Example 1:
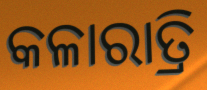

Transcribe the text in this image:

କଳାରାତ୍ରି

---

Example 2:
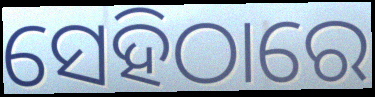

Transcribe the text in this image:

ସେହିଠାରେ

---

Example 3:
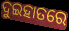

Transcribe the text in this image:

ଦୁଇହାତରେ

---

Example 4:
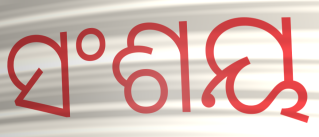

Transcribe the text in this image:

ସଂଶୟ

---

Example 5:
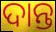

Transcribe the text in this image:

ଦାନ୍ତ